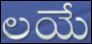
లయే